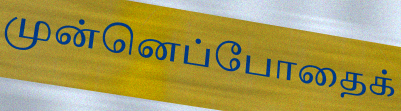
முன்னெப்போதைக்